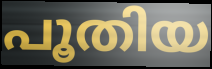
പൂതിയ